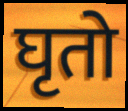
घृतो